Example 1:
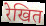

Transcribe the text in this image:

रेखित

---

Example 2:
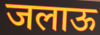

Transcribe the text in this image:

जलाऊ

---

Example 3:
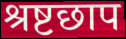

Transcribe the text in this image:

श्रष्टछाप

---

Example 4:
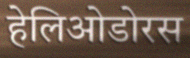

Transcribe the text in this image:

हेलिओडोरस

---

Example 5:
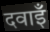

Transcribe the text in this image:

दवाइँ